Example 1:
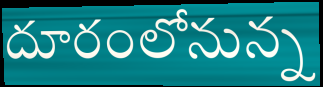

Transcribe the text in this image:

దూరంలోనున్న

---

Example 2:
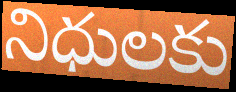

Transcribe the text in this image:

నిధులకు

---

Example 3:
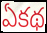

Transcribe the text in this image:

ఏకథ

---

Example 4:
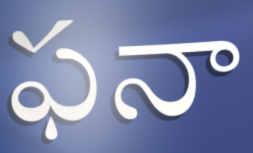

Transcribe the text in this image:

ఫనా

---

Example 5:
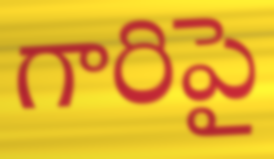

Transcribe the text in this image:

గారిపై